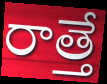
రాత్తే